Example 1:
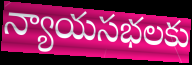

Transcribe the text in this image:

న్యాయసభలకు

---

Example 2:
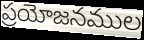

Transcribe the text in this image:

ప్రయోజనముల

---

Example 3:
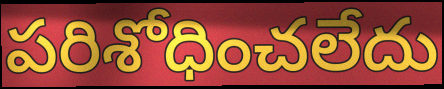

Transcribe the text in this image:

పరిశోధించలేదు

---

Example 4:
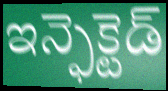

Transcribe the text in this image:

ఇన్ఫెక్టెడ్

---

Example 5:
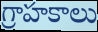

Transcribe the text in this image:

గ్రాహకాలు